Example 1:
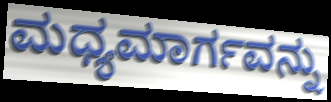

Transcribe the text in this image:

ಮಧ್ಯಮಾರ್ಗವನ್ನು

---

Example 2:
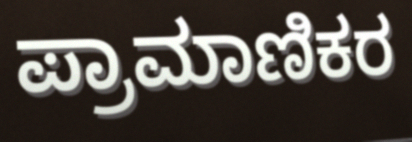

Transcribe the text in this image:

ಪ್ರಾಮಾಣಿಕರ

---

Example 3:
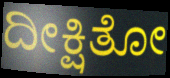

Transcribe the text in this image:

ದೀಕ್ಷಿತೋ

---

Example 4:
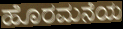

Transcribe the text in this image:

ಹೊರಮನೆಯ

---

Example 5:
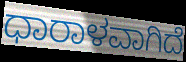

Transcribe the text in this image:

ಧಾರಾಳವಾಗಿದೆ